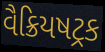
વૈક્રિયષટ્રક